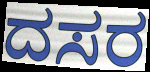
ದಸರ